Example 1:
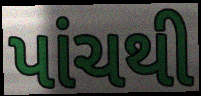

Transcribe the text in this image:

પાંચથી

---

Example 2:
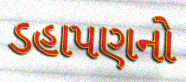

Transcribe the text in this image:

ડહાપણનો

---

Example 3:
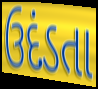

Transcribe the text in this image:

ઉદંડતા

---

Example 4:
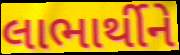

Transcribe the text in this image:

લાભાર્થીને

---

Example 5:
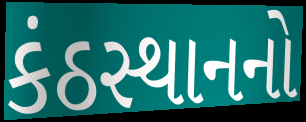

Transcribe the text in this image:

કંઠસ્થાનનો